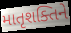
માતૃશક્તિને